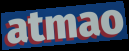
atmao